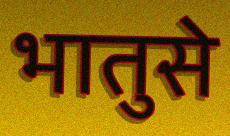
भातुसे